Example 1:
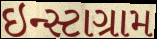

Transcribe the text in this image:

ઇન્સ્ટાગ્રામ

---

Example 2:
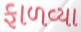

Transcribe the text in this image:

ફાળવ્યા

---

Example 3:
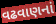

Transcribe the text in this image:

વઢવાણનાં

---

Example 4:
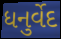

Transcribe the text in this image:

ધનુર્વેદ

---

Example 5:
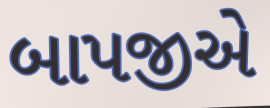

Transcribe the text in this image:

બાપજીએ